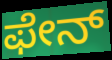
ಫೇನ್